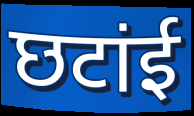
छटांई